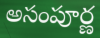
అసంపూర్ణ